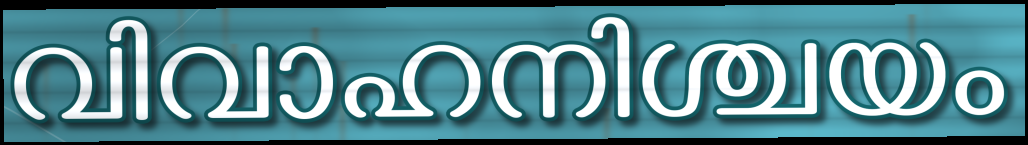
വിവാഹനിശ്ചയം